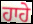
ਹਾਹੇ